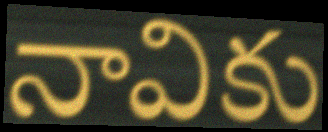
నావికు